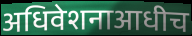
अधिवेशनाआधीच